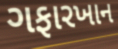
ગફારખાન